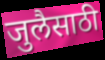
जुलैसाठी